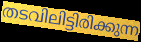
തടവിലിട്ടിരിക്കുന്ന